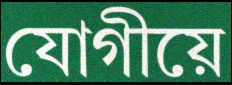
যোগীয়ে